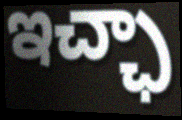
ఇచ్ఛా